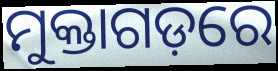
ମୁକ୍ତାଗଡ଼ରେ